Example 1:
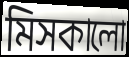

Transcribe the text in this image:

মিসকালো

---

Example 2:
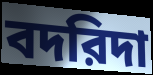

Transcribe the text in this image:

বদরিদা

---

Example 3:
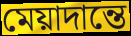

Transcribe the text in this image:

মেয়াদান্তে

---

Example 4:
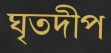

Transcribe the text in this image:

ঘৃতদীপ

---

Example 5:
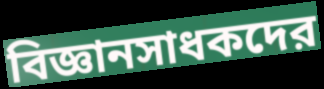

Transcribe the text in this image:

বিজ্ঞানসাধকদের